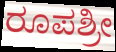
ರೂಪಶ್ರೀ